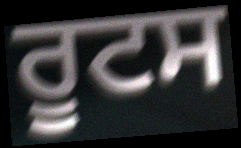
ਰੂਟਸ